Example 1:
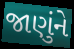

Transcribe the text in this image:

જાણુંને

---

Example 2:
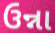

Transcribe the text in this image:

ઉન્ના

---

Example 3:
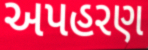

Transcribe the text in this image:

અપહરણ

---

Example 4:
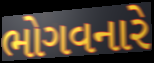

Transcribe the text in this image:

ભોગવનારે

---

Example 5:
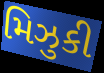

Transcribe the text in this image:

મિઝુકી